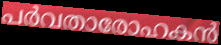
പർവതാരോഹകൻ